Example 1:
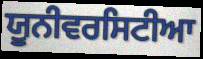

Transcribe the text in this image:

ਯੂਨੀਵਰਸਿਟੀਆ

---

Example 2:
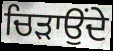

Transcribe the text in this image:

ਚਿੜਾਉਂਦੇ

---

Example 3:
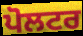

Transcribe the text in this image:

ਪੋਲਟਰ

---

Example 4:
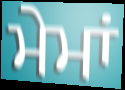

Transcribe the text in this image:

ਮੇਮਾਂ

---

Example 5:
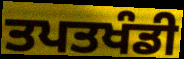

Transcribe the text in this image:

ਤਪਤਖੰਡੀ